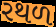
રથળ